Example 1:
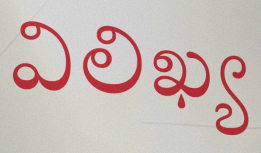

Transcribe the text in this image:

విలిఖ్య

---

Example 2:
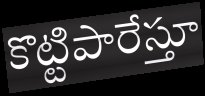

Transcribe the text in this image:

కొట్టిపారేస్తూ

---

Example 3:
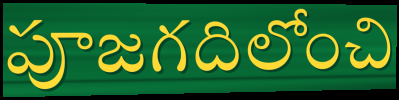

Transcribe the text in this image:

పూజగదిలోంచి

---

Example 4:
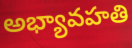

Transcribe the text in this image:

అభ్యావహతి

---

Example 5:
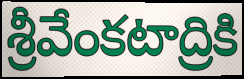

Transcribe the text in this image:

శ్రీవేంకటాద్రికి